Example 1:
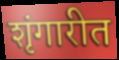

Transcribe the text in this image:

शृंगारीत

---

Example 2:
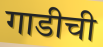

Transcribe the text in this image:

गाडीची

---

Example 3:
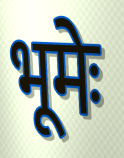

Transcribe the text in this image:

भूमेः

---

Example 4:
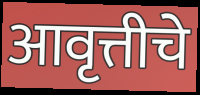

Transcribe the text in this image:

आवृत्तीचे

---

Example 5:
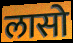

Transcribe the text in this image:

लासो